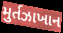
મુર્તઝાખાન